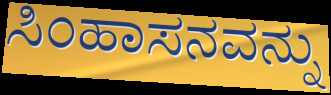
ಸಿಂಹಾಸನವನ್ನು